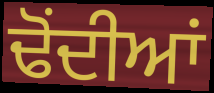
ਢੋਂਦੀਆਂ